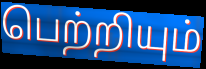
பெற்றியும்